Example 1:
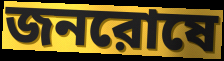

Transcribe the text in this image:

জনরোষে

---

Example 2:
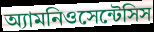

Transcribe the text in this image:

অ্যামনিওসেন্টেসিস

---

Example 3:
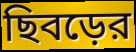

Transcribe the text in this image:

ছিবড়ের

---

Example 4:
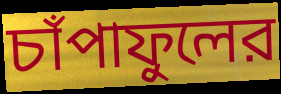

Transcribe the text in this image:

চাঁপাফুলের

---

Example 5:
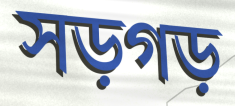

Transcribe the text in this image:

সড়গড়